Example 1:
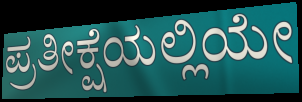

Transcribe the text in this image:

ಪ್ರತೀಕ್ಷೆಯಲ್ಲಿಯೇ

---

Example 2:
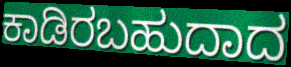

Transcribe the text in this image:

ಕಾಡಿರಬಹುದಾದ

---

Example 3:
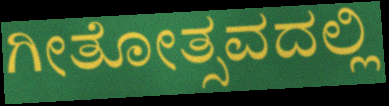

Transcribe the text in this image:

ಗೀತೋತ್ಸವದಲ್ಲಿ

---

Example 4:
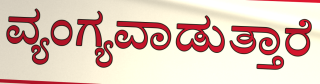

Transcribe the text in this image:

ವ್ಯಂಗ್ಯವಾಡುತ್ತಾರೆ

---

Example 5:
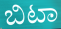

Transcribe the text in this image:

ಬಿಟಾ